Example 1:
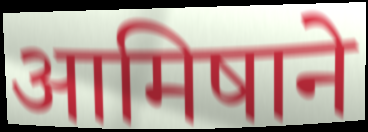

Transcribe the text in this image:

आमिषाने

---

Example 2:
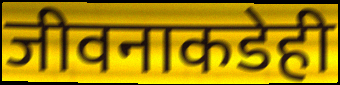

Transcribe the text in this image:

जीवनाकडेही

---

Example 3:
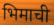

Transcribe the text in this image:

भिमाची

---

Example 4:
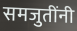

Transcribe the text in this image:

समजुतींनी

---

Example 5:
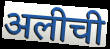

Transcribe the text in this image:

अलीची